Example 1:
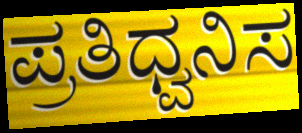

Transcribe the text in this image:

ಪ್ರತಿಧ್ವನಿಸ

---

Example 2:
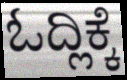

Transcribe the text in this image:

ಓದ್ಲಿಕ್ಕೆ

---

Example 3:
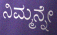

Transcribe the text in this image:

ನಿಮ್ಮನ್ನೇ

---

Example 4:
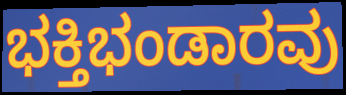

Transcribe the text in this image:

ಭಕ್ತಿಭಂಡಾರವು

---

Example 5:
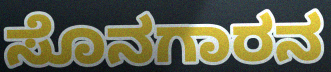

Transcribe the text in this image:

ಸೊನಗಾರನ